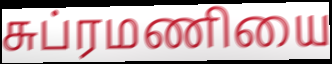
சுப்ரமணியை